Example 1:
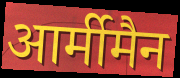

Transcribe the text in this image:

आर्मीमैन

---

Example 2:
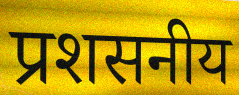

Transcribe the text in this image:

प्रशसनीय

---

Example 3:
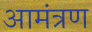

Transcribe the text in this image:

आमंत्रण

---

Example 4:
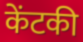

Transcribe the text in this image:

केंटकी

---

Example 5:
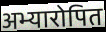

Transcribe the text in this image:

अभ्यारोपित